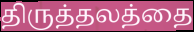
திருத்தலத்தை